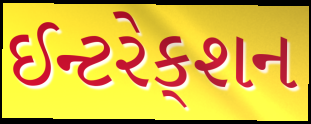
ઈન્ટરેક્‌શન